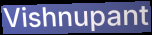
Vishnupant